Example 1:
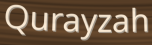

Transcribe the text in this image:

Qurayzah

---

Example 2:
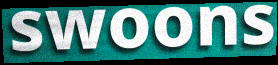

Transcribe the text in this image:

swoons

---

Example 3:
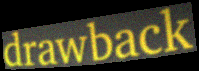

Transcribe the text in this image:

drawback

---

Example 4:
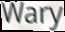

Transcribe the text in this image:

Wary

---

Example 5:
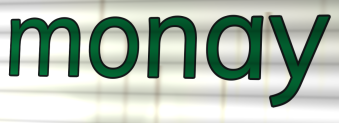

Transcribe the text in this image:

monay